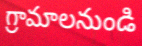
గ్రామాలనుండి